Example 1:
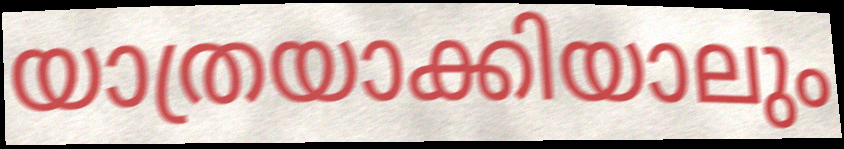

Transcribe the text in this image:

യാത്രയാക്കിയാലും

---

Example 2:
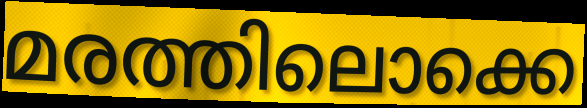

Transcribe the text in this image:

മരത്തിലൊക്കെ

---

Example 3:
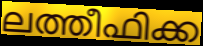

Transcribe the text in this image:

ലത്തീഫിക്ക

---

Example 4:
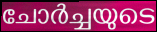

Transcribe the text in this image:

ചോർച്ചയുടെ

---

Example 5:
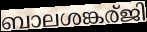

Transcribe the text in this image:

ബാലശങ്കര്ജി